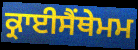
ਕ੍ਰਾਈਸੈਂਥੇਮਮ